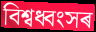
বিশ্বধ্বংসৰ